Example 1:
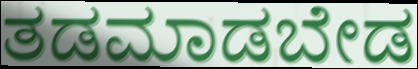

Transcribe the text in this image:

ತಡಮಾಡಬೇಡ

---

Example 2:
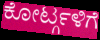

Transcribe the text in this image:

ಕೋರ್ಟ್ಗಳಿಗೆ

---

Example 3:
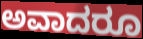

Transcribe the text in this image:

ಅವಾದರೂ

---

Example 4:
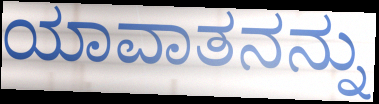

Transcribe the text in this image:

ಯಾವಾತನನ್ನು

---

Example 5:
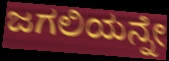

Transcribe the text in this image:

ಜಗಲಿಯನ್ನೇ